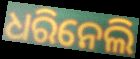
ଧରିନେଲି